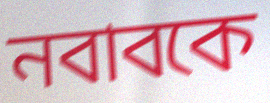
নবাবকে